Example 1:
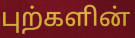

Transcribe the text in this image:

புற்களின்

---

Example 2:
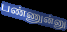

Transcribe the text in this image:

பண்ணுன்னு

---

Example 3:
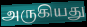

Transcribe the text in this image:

அருகியது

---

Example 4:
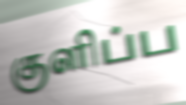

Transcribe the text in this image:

குளிப்ப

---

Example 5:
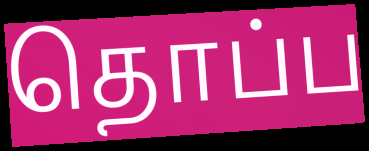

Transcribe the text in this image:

தொப்ப